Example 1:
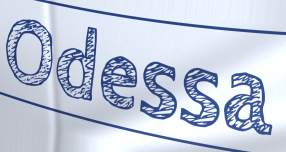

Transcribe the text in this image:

Odessa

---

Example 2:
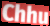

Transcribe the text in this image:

Chhu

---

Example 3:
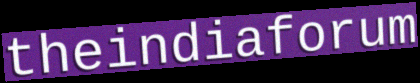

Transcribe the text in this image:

theindiaforum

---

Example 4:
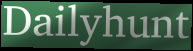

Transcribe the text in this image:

Dailyhunt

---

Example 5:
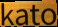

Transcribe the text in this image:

kato